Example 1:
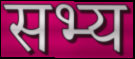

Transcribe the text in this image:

सभ्य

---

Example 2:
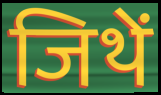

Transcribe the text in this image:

जिथें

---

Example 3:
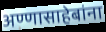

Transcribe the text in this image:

अण्णासाहेबांना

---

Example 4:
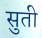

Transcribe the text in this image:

सुती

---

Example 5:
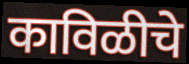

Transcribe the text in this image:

काविळीचे